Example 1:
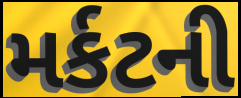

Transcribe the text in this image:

મર્કટની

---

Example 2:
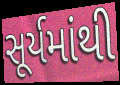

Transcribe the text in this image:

સૂર્યમાંથી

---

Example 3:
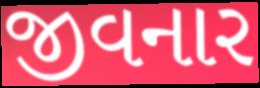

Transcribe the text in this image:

જીવનાર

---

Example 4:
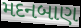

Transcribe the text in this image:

મદનબાણ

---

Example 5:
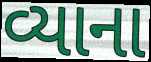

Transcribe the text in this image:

વ્યાના